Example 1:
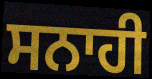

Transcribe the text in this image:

ਸਨਾਹੀ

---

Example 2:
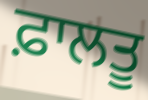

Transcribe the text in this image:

ਫ਼ਾਲਤੂ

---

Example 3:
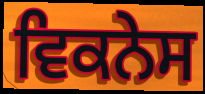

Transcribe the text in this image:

ਵਿਕਨੇਸ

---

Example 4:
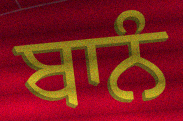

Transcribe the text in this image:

ਬਾਨੰ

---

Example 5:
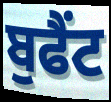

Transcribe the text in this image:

ਬੁਫੈਂਟ